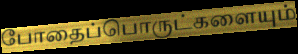
போதைப்பொருட்களையும்